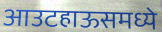
आउटहाऊसमध्ये